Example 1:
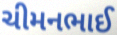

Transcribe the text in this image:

ચીમનભાઈ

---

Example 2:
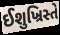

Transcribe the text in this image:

ઈશુખ્રિસ્તે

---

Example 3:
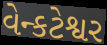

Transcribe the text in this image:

વેન્કટેશ્વર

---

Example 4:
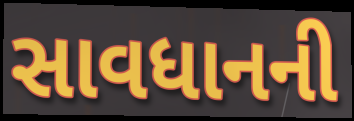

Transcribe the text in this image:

સાવધાનની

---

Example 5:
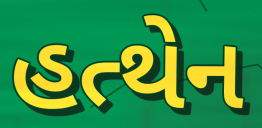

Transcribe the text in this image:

હત્થેન